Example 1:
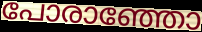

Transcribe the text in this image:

പോരാഞ്ഞോ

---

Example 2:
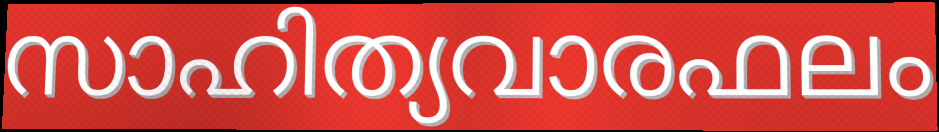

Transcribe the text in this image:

സാഹിത്യവാരഫലം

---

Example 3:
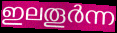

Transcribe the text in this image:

ഇലതൂർന്ന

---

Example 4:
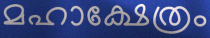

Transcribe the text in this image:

മഹാക്ഷേത്രം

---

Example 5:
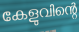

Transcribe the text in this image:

കേളുവിന്റെ